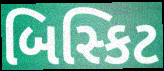
બિસ્કિટ